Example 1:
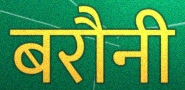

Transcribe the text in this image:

बरौनी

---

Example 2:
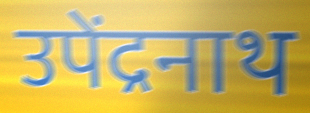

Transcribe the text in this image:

उपेंद्रनाथ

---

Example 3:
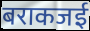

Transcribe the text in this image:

बराकजई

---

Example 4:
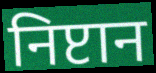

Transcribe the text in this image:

निप्टान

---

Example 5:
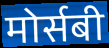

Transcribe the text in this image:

मोर्सबी